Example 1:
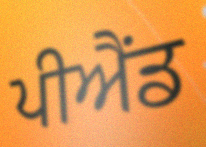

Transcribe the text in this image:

ਪੀਐਂਡ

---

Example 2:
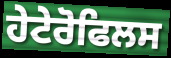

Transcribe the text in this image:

ਹੇਟੇਰੋਫਿਲਸ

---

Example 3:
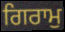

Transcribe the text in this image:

ਗਿਰਾਮੁ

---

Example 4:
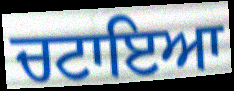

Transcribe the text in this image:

ਚਟਾਇਆ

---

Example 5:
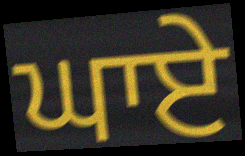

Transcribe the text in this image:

ਘਾਏ